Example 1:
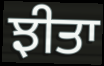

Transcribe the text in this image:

ਝੀਤਾ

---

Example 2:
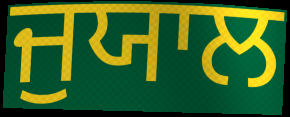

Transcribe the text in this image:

ਜੁਯਾਲ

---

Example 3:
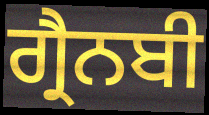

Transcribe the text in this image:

ਗ੍ਰੈਨਬੀ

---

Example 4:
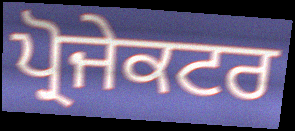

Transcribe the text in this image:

ਪ੍ਰੋਜੇਕਟਰ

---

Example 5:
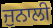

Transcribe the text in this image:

ਜੁਨਾਲੀ